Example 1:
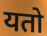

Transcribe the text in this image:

यतो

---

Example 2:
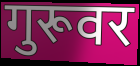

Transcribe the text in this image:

गुरूवर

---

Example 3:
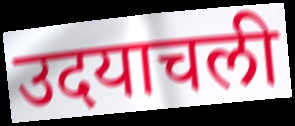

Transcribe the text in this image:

उदयाचली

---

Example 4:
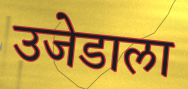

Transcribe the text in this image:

उजेडाला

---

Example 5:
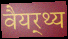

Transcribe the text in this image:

वैयर्थ्य